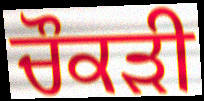
ਚੌਕੜੀ